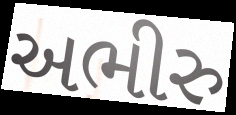
અભીરુ